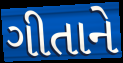
ગીતાને